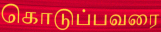
கொடுப்பவரை